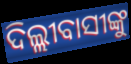
ଦିଲ୍ଲୀବାସୀଙ୍କୁ